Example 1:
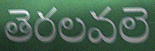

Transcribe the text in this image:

తెరలవలె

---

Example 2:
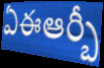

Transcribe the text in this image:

ఏఈఆర్బీ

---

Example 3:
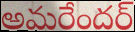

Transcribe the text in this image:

అమరేందర్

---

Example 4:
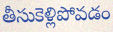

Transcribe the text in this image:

తీసుకెళ్లిపోవడం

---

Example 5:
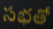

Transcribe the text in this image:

సభతో